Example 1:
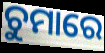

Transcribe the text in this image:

ଚୁମାରେ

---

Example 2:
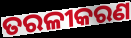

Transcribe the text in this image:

ତରଳୀକରଣ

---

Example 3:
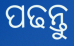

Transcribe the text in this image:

ପଢନ୍ତୁ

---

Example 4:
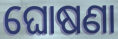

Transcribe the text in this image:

ଘୋଷଣା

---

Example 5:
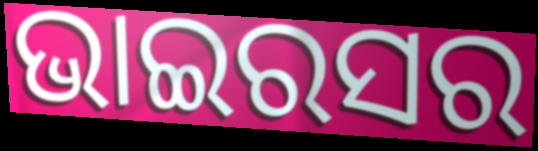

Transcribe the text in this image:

ଭାଇରସର